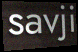
savji